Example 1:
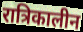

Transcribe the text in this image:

रात्रिकालीन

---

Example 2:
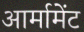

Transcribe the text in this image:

आर्मामेंट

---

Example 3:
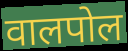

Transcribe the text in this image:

वालपोल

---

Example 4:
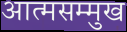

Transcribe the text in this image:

आत्मसम्मुख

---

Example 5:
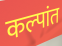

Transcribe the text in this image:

कल्पांत